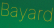
Bayard